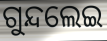
ଗୁନ୍ଦଲେଇ